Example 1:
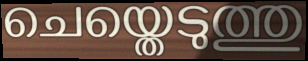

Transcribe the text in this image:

ചെയ്തെടുത്തു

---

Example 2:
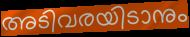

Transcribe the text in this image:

അടിവരയിടാനും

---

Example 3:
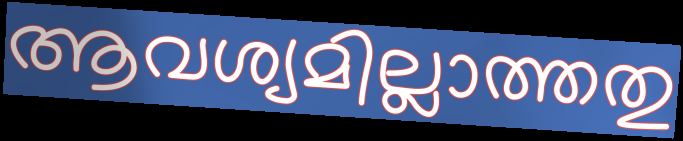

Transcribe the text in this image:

ആവശ്യമില്ലാത്തതു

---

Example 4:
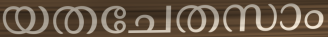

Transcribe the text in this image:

യതചേതസാം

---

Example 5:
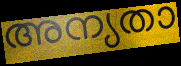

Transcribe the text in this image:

അന്യതാ